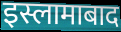
इस्लामाबाद